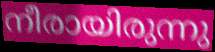
നീരായിരുന്നു